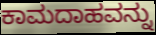
ಕಾಮದಾಹವನ್ನು